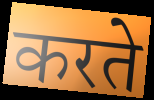
करते